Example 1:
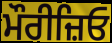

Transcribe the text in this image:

ਮੌਰੀਜ਼ਿਓ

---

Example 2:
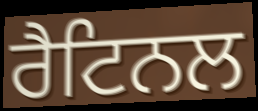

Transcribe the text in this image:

ਰੈਟਿਨਲ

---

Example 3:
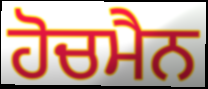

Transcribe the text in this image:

ਹੋਚਮੈਨ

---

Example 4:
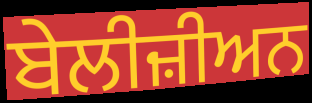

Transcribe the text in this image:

ਬੇਲੀਜ਼ੀਅਨ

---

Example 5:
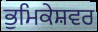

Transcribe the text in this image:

ਭੁਮਿਕੇਸ਼ਵਰ